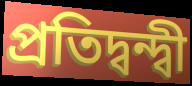
প্রতিদ্বন্দ্বী